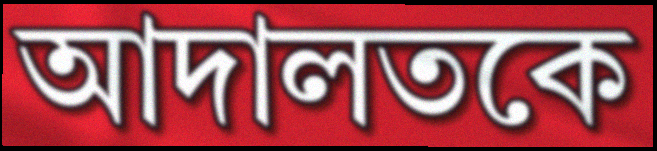
আদালতকে